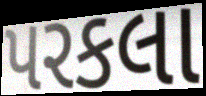
પરકલા